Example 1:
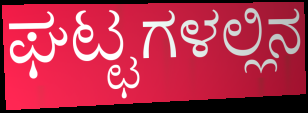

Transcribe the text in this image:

ಘಟ್ಟಗಳಲ್ಲಿನ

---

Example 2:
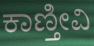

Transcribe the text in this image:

ಕಾಣ್ತೀವಿ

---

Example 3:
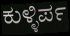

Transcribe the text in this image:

ಕುಳ್ಳಿರ್ಪ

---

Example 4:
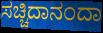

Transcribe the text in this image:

ಸಚ್ಚಿದಾನಂದಾ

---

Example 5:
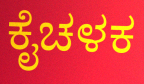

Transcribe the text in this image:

ಕೈಚಳಕ